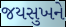
જયસુખને